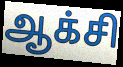
ஆக்சி